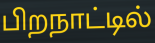
பிறநாட்டில்